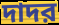
দাদর